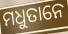
ମଧୁତାନେ